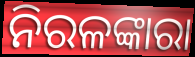
ନିରଳଙ୍କାରା